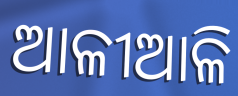
ଆଳୀଆଳି